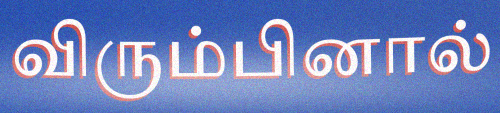
விரும்பினால்